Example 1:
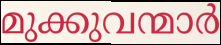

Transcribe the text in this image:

മുക്കുവന്മാർ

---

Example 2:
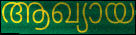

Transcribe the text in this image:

ആഖ്യായ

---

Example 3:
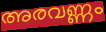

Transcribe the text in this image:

അരവണ്ണം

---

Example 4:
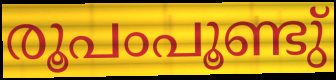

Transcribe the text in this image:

രൂപംപൂണ്ടു്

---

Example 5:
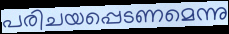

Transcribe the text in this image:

പരിചയപ്പെടണമെന്നു